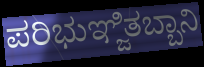
ಪರಿಭುಞ್ಜಿತಬ್ಬಾನಿ